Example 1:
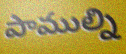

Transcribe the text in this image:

పాముల్ని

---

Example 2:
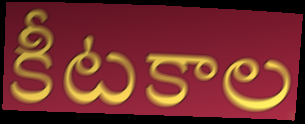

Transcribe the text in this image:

కీటకాల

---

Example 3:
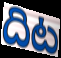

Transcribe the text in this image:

దిట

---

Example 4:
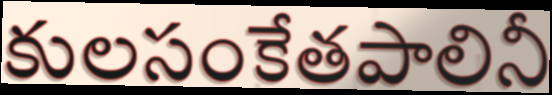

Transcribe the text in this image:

కులసంకేతపాలినీ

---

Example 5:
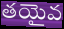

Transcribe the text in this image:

తయైవ